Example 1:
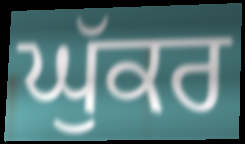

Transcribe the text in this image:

ਘੁੱਕਰ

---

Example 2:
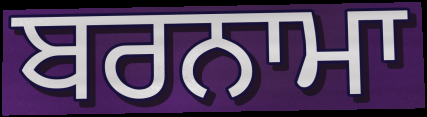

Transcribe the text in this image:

ਬਰਨਾਮਾ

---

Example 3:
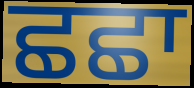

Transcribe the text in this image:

ਛਛਾ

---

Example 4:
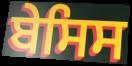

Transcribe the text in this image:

ਬੇਸਿਸ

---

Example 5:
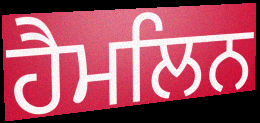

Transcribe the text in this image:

ਹੈਮਲਿਨ